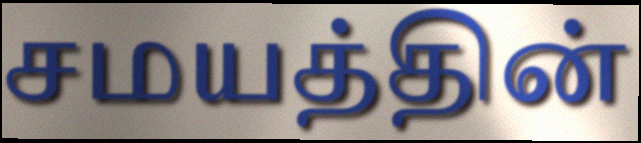
சமயத்தின்